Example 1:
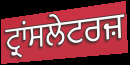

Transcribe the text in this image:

ਟ੍ਰਾਂਸਲੇਟਰਜ਼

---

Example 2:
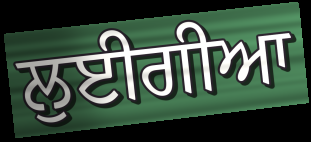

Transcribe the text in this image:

ਲੁਈਗੀਆ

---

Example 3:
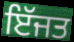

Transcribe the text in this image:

ਇੱਜਤ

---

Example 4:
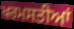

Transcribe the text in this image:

ਖਰਮਸਤੀਆਂ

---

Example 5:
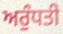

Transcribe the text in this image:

ਅਰੁੰਧਤੀ